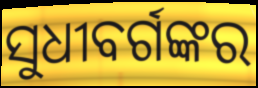
ସୁଧୀବର୍ଗଙ୍କର